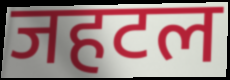
जहटल